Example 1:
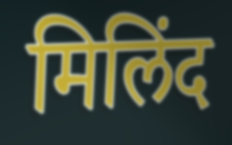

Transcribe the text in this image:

मिलिंद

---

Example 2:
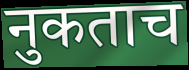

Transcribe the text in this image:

नुकताच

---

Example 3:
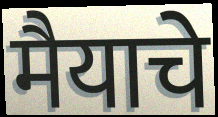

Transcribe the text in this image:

मैयाचे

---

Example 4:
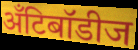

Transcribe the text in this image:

अँटिबॉडीज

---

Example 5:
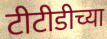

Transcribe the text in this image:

टीटीडीच्या